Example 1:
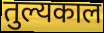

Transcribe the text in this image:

तुल्यकाल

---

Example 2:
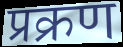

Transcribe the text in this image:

प्रक्रण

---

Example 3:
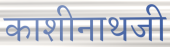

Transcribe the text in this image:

काशीनाथजी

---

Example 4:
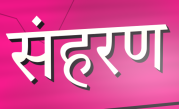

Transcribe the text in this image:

संहरण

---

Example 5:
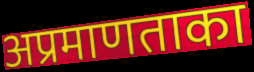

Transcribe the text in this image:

अप्रमाणताका